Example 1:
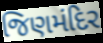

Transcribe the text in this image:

જિણમંદિર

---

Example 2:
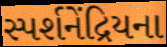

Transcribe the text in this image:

સ્પર્શનેંદ્રિયના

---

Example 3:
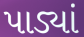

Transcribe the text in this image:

પાડ્યાં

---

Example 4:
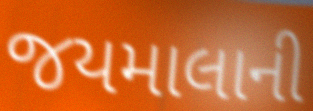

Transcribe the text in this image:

જયમાલાની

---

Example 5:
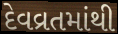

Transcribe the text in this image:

દેવવ્રતમાંથી